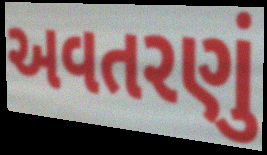
અવતરણું